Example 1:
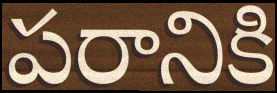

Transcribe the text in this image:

పరానికి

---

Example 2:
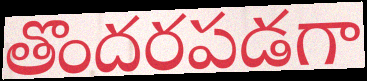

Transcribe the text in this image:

తొందరపడగా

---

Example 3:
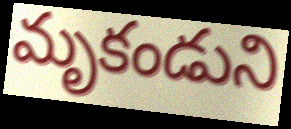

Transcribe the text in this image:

మృకండుని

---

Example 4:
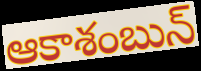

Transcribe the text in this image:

ఆకాశంబున్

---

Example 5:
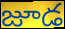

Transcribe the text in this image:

జూడ